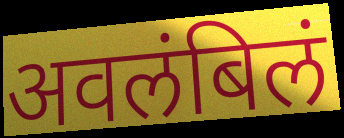
अवलंबिलं